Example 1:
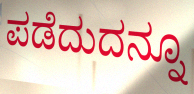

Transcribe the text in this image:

ಪಡೆದುದನ್ನೂ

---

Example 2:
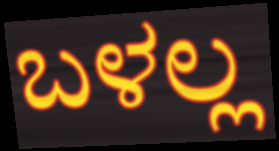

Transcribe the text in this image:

ಬಳಲ್ಲ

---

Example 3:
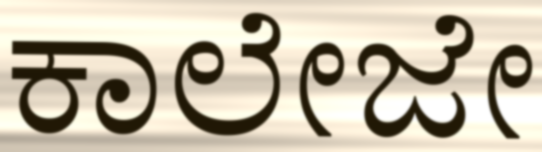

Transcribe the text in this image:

ಕಾಲೇಜೇ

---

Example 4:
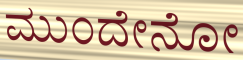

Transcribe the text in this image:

ಮುಂದೇನೋ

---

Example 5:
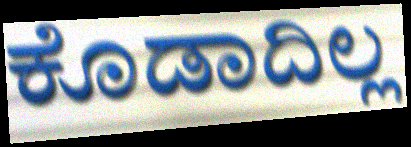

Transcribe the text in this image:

ಕೊಡಾದಿಲ್ಲ